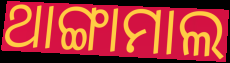
ଥାଙ୍ଗାମାଲ